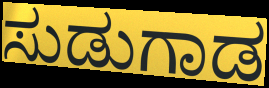
ಸುಡುಗಾಡ